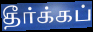
தீர்க்கப்